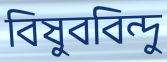
বিষুববিন্দু